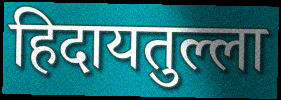
हिदायतुल्ला